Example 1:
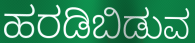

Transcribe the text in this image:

ಹರಡಿಬಿಡುವ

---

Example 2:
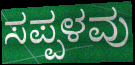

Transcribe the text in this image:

ಸಪ್ಪಳವು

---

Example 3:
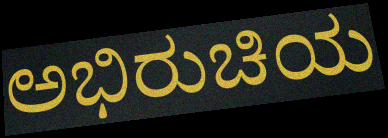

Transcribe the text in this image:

ಅಭಿರುಚಿಯ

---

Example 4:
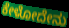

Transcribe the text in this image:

ಕೇಳೋದೇನು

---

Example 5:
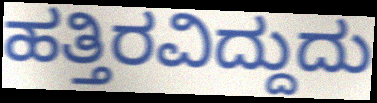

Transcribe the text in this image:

ಹತ್ತಿರವಿದ್ದುದು